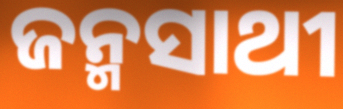
ଜନ୍ମସାଥୀ